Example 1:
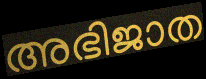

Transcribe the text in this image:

അഭിജാത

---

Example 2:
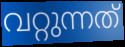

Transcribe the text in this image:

വറ്റുന്നത്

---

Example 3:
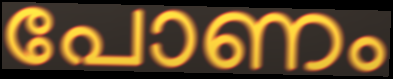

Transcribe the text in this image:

പോണം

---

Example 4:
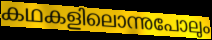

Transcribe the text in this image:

കഥകളിലൊന്നുപോലും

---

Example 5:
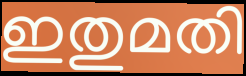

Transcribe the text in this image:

ഇതുമതി